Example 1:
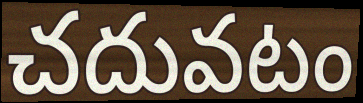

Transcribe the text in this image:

చదువటం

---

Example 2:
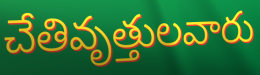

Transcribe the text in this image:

చేతివృత్తులవారు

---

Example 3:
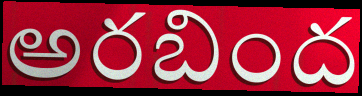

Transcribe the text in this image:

అరబింద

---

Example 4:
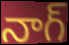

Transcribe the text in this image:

నాగ్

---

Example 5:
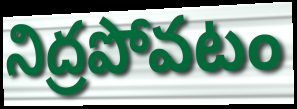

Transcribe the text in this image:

నిద్రపోవటం